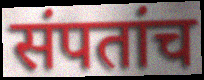
संपतांच